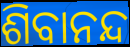
ଶିବାନନ୍ଦ